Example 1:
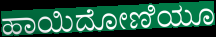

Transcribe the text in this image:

ಹಾಯಿದೋಣಿಯೂ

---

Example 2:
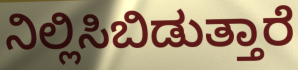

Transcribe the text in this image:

ನಿಲ್ಲಿಸಿಬಿಡುತ್ತಾರೆ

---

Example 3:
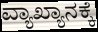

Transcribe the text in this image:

ವ್ಯಾಖ್ಯಾನಕ್ಕೆ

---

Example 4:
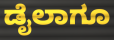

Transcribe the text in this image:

ಡೈಲಾಗೂ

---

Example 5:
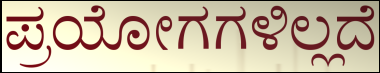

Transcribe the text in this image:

ಪ್ರಯೋಗಗಳಿಲ್ಲದೆ